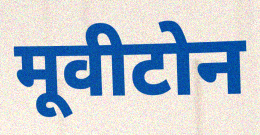
मूवीटोन